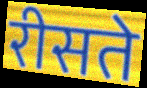
रीसते